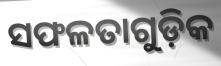
ସଫଳତାଗୁଡ଼ିକ